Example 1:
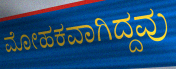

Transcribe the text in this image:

ಮೋಹಕವಾಗಿದ್ದವು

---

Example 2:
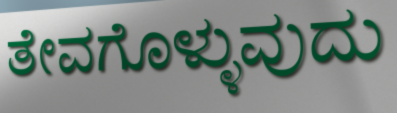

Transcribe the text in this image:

ತೇವಗೊಳ್ಳುವುದು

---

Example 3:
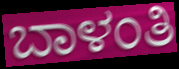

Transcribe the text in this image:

ಬಾಳಂತಿ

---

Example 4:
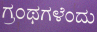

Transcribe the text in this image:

ಗ್ರಂಥಗಳೆಂದು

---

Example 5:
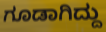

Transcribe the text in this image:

ಗೂಡಾಗಿದ್ದು